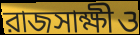
রাজসাক্ষীও